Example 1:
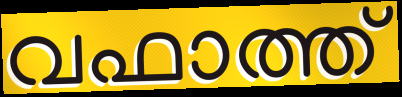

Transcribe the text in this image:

വഫാത്ത്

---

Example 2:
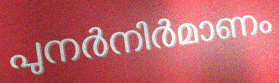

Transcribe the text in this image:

പുനർനിർമാണം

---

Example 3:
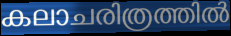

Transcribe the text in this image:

കലാചരിത്രത്തിൽ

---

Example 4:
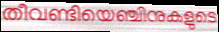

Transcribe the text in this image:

തീവണ്ടിയെഞ്ചിനുകളുടെ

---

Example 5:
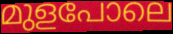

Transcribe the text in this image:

മുളപോലെ